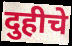
दुहीचे